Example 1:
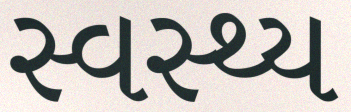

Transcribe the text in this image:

સ્વસ્થ્ય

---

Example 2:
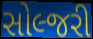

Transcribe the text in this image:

સોલ્જરી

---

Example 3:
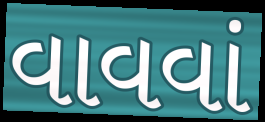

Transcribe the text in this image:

વાવવાં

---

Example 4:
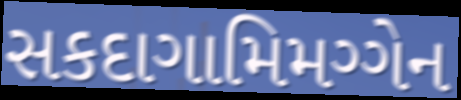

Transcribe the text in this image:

સકદાગામિમગ્ગેન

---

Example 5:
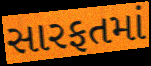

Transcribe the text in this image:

સારફતમાં